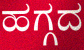
ಹಗ್ಗದ